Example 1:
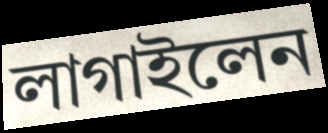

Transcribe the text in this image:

লাগাইলেন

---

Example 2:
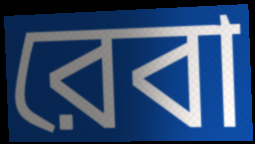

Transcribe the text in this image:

রেবা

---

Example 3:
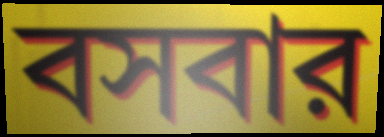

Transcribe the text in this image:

বসবার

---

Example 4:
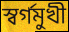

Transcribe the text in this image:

স্বর্গমুখী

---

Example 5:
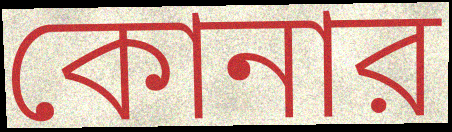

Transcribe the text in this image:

কোনার